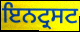
ਇਨਟ੍ਰਸਟ